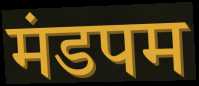
मंडपम